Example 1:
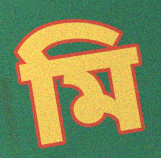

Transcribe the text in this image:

মি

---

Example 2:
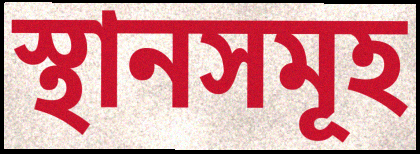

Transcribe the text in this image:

স্থানসমূহ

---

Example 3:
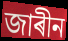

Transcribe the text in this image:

জাৰীন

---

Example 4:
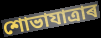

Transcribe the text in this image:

শোভাযাত্ৰাৰ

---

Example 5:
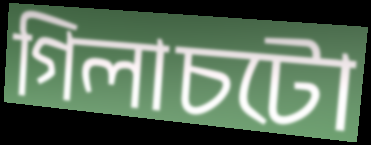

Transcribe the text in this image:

গিলাচটো